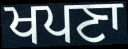
ਖਪਣਾ